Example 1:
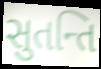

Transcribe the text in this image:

સુતન્તિ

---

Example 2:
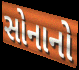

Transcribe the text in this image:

સોનાનો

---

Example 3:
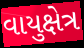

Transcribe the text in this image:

વાયુક્ષેત્ર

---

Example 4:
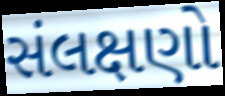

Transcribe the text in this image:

સંલક્ષણો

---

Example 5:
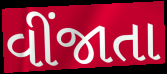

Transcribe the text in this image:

વીંજાતા